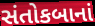
સંતોકબાનાં